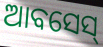
ଆବସେସ୍